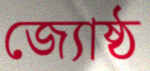
জ্যোষ্ঠ